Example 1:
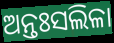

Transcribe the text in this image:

ଅନ୍ତଃସଲିଳା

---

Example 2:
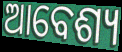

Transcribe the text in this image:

ଆବେଶ୍ୟ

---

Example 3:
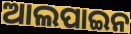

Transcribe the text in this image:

ଆଲପାଇନ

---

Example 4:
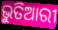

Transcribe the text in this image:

ଭୁତିଆରୀ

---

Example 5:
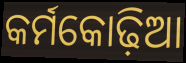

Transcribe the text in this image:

କର୍ମକୋଢ଼ିଆ